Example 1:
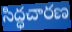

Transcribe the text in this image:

సిద్ధచారణ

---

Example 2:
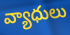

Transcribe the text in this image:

వ్యాధులు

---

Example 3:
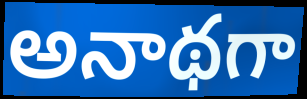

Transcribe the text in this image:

అనాథగా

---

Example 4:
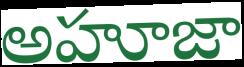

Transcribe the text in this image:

అహూజా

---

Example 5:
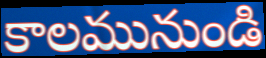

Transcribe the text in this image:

కాలమునుండి